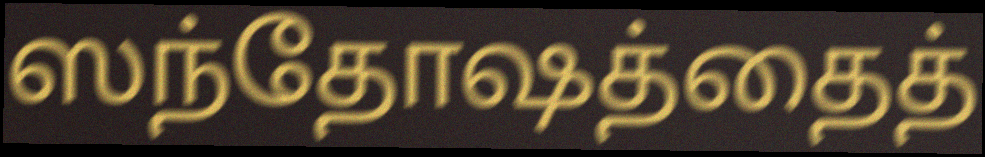
ஸந்தோஷத்தைத்